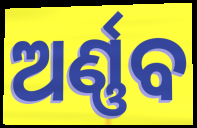
ଅର୍ଣ୍ଣବ